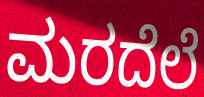
ಮರದೆಲೆ